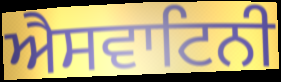
ਐਸਵਾਟਿਨੀ